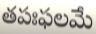
తపఃఫలమే